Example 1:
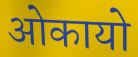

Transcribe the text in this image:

ओकायो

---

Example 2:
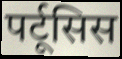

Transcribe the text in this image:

पर्टूसिस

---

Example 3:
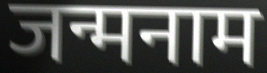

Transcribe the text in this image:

जन्मनाम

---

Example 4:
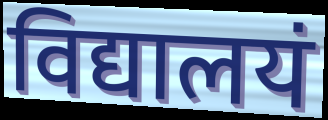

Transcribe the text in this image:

विद्यालयं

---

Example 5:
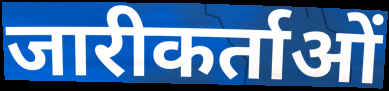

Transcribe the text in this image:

जारीकर्ताओं